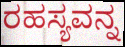
ರಹಸ್ಯವನ್ನ